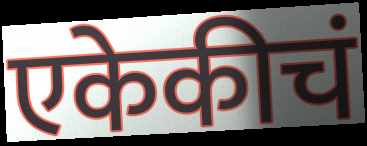
एकेकीचं